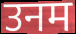
उनम